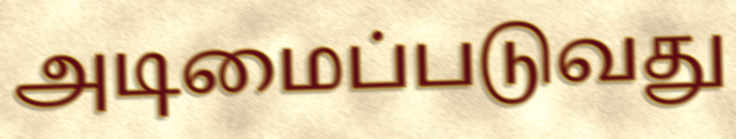
அடிமைப்படுவது